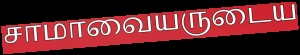
சாமாவையருடைய